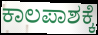
ಕಾಲಪಾಶಕ್ಕೆ